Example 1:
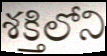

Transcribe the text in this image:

శక్తిలోని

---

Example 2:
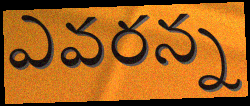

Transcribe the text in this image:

ఎవరన్న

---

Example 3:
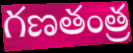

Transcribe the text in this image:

గణతంత్ర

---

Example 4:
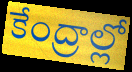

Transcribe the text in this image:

కేంద్రాల్లో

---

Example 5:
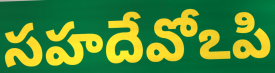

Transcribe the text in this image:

సహదేవోఽపి